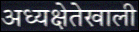
अध्यक्षेतेखाली